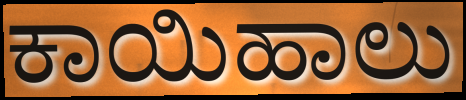
ಕಾಯಿಹಾಲು